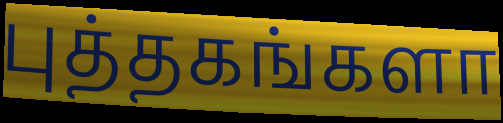
புத்தகங்களா